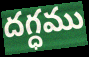
దగ్ధము